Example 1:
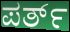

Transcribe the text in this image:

ಪರ್ತ್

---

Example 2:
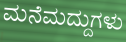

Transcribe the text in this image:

ಮನೆಮದ್ದುಗಳು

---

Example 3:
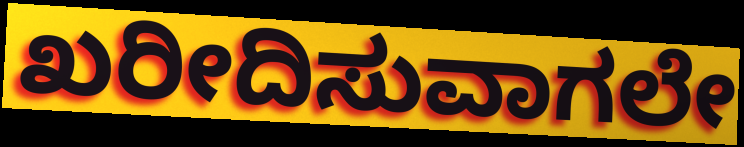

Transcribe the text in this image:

ಖರೀದಿಸುವಾಗಲೇ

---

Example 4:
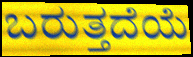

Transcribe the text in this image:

ಬರುತ್ತದೆಯೆ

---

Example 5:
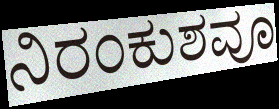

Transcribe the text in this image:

ನಿರಂಕುಶವೂ